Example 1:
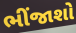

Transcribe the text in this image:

ભીંજાશો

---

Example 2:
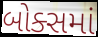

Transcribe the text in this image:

બોક્સમાં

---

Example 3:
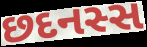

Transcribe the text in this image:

છદનસ્સ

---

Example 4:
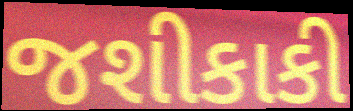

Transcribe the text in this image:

જશીકાકી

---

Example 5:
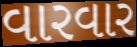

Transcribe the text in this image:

વારવાર